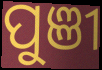
ପୁଞୀ